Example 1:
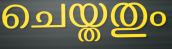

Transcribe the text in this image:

ചെയ്തതും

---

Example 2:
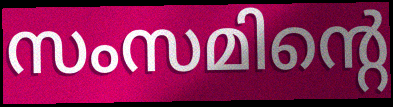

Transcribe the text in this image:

സംസമിന്റെ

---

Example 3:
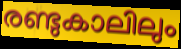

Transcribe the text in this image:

രണ്ടുകാലിലും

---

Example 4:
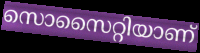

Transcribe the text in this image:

സൊസൈറ്റിയാണ്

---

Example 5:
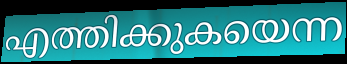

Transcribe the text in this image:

എത്തിക്കുകയെന്ന